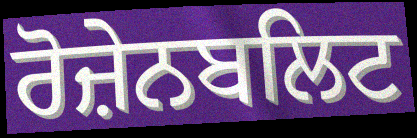
ਰੋਜ਼ੇਨਬਲਿਟ